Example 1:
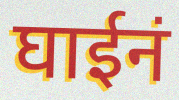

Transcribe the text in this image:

घाईनं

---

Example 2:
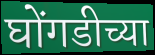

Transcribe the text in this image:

घोंगडीच्या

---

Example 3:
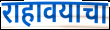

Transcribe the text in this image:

राहावयाचा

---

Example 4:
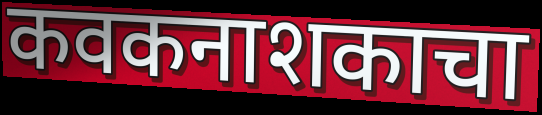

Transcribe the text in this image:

कवकनाशकाचा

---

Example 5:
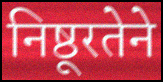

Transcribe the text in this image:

निष्ठूरतेने